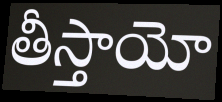
తీస్తాయో